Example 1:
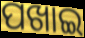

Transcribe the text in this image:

ପଖାଇ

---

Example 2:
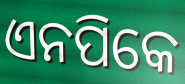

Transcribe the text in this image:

ଏନପିକେ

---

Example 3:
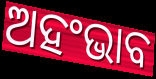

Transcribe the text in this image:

ଅହଂଭାବ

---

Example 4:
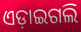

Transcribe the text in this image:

ଏଡ଼ାଇଗଲି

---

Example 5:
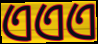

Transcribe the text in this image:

ଏଏଏ